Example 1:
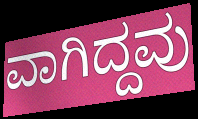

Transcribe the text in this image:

ವಾಗಿದ್ದವು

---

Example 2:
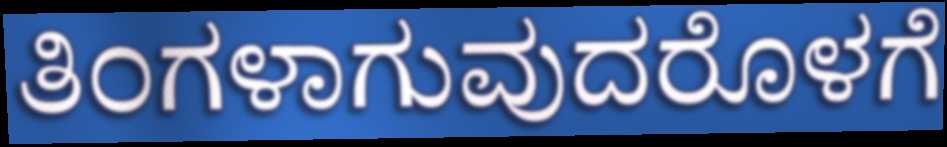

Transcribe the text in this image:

ತಿಂಗಳಾಗುವುದರೊಳಗೆ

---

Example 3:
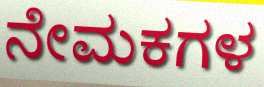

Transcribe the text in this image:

ನೇಮಕಗಳ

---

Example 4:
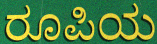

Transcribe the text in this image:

ರೂಪಿಯ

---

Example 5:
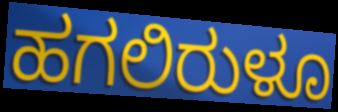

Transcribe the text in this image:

ಹಗಲಿರುಳೂ